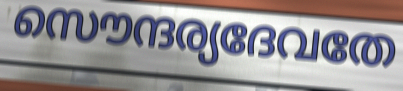
സൌന്ദര്യദേവതേ